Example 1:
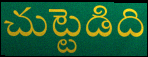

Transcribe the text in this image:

చుట్టెడిది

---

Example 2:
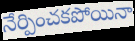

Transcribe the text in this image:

నేర్పించకపోయినా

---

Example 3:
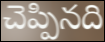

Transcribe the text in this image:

చెప్పినది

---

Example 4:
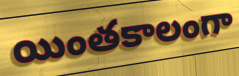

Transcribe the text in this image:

యింతకాలంగా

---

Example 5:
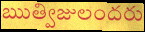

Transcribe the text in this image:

ఋత్విజులందరు